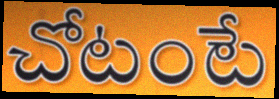
చోటంటే